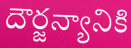
దౌర్జన్యానికి